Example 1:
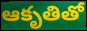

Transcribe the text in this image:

ఆకృతితో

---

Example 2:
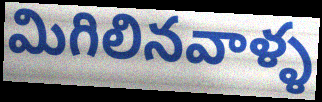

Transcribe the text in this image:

మిగిలినవాళ్ళ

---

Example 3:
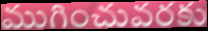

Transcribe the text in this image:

ముగించువరకు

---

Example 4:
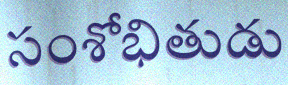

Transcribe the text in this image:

సంశోభితుడు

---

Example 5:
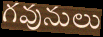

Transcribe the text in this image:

గవునులు